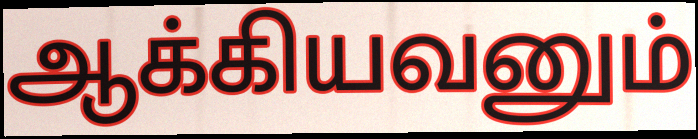
ஆக்கியவனும்